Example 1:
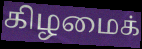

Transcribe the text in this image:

கிழமைக்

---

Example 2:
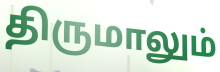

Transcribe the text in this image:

திருமாலும்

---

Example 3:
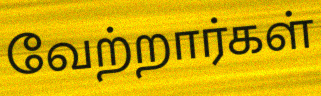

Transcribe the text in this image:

வேற்றார்கள்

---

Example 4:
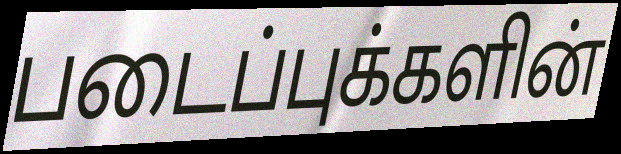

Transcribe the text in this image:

படைப்புக்களின்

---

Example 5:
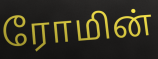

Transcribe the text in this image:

ரோமின்